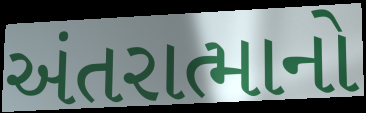
અંતરાત્માનો